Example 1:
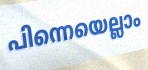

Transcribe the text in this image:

പിന്നെയെല്ലാം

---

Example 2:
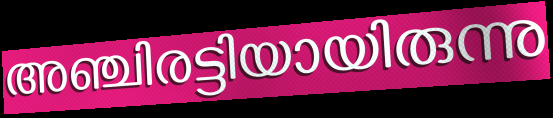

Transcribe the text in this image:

അഞ്ചിരട്ടിയായിരുന്നു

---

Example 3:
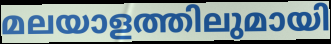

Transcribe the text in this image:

മലയാളത്തിലുമായി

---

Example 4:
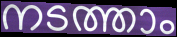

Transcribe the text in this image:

നടത്താം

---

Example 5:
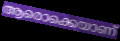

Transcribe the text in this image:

ആരൊക്കെയാണ്